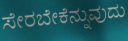
ಸೇರಬೇಕೆನ್ನುವುದು